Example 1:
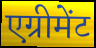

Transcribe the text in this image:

एग्रीमेंट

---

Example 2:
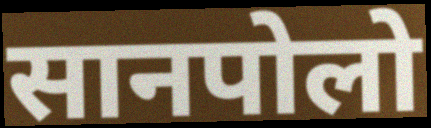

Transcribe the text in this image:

सानपोलो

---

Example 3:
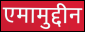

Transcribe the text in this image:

एमामुद्दीन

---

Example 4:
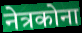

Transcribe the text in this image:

नेत्रकोना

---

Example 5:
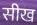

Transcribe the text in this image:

सीख